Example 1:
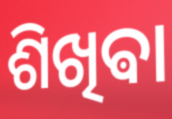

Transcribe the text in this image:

ଶିଖିଵା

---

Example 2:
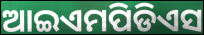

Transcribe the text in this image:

ଆଇଏମପିଡିଏସ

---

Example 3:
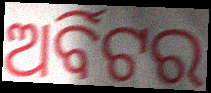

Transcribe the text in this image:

ଅର୍ବିଟର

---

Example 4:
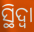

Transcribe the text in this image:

ସ୍ଥିଦ୍ଵା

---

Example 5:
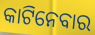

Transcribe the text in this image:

କାଟିନେବାର